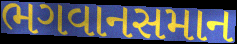
ભગવાનસમાન